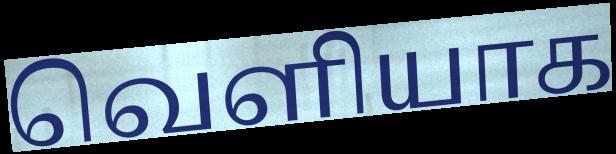
வெளியாக